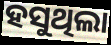
ହସୁଥିଲା